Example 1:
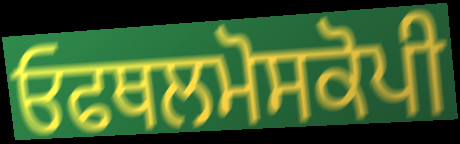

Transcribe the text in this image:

ਓਫਥਲਮੋਸਕੋਪੀ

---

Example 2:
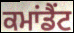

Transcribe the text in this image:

ਕਮਾਂਡੈਂਟ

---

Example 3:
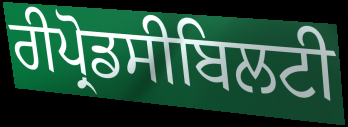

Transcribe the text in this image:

ਰੀਪ੍ਰੋਡਸੀਬਿਲਟੀ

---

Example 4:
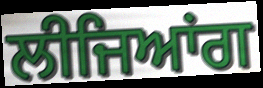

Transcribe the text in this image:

ਲੀਜਿਆਂਗ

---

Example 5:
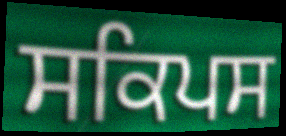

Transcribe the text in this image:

ਸਕਿਪਸ